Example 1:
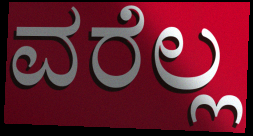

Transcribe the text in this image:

ವರೆಲ್ಲ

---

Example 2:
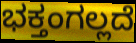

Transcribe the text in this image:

ಭಕ್ತಂಗಲ್ಲದೆ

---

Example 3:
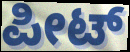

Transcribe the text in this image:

ಪೀಟ್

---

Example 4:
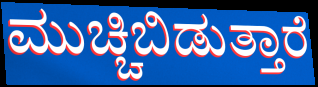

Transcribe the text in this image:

ಮುಚ್ಚಿಬಿಡುತ್ತಾರೆ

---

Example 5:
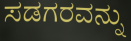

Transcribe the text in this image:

ಸಡಗರವನ್ನು